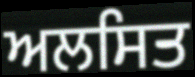
ਅਲਸਿਤ